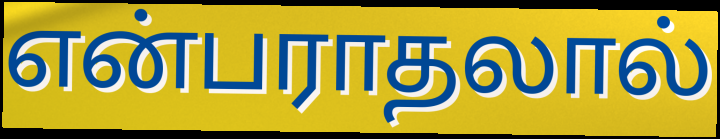
என்பராதலால்